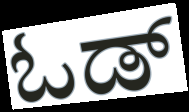
ಓಡ್